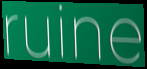
ruine